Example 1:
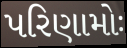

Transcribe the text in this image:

પરિણામોઃ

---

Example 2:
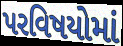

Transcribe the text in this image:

પરવિષયોમાં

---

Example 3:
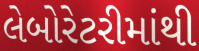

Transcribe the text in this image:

લેબોરેટરીમાંથી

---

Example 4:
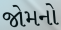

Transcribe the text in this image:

જોમનો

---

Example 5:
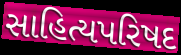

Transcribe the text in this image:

સાહિત્યપરિષદ